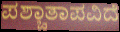
ಪಶ್ಚಾತಾಪವಿದೆ